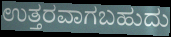
ಉತ್ತರವಾಗಬಹುದು